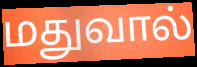
மதுவால்